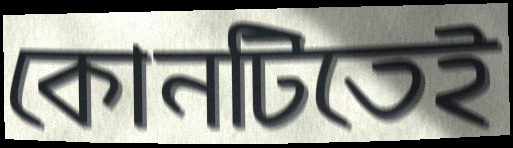
কোনটিতেই